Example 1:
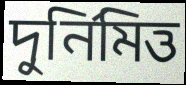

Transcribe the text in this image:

দুর্নিমিত্ত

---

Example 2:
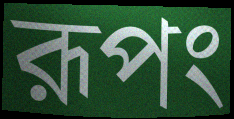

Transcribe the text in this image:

রূপং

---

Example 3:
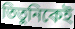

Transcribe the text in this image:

তিতুনিকেই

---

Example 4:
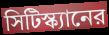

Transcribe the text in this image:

সিটিস্ক্যানের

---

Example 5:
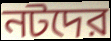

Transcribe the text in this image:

নটদের